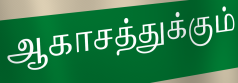
ஆகாசத்துக்கும்